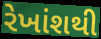
રેખાંશથી